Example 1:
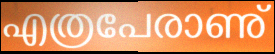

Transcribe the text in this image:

എത്രപേരാണു്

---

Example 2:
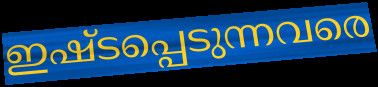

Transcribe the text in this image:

ഇഷ്ടപ്പെടുന്നവരെ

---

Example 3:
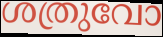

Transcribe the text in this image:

ശത്രുവോ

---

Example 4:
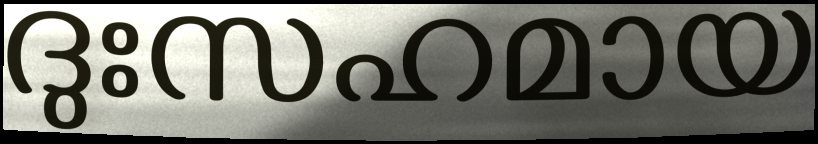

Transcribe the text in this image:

ദുഃസഹമായ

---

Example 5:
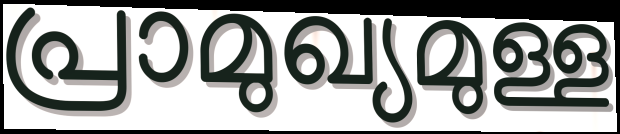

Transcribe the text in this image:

പ്രാമുഖ്യമുള്ള